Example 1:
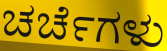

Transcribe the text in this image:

ಚರ್ಚೆಗಳು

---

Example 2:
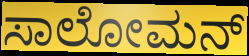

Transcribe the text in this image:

ಸಾಲೋಮನ್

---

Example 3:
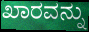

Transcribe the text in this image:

ಖಾರವನ್ನು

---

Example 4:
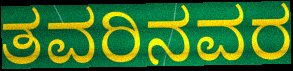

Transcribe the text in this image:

ತವರಿನವರ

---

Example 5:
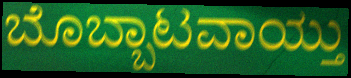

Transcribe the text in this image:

ಬೊಬ್ಬಾಟವಾಯ್ತು